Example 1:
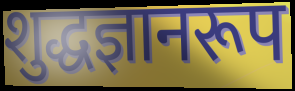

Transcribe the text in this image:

शुद्धज्ञानरूप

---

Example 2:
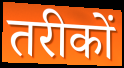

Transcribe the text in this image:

तरीकों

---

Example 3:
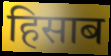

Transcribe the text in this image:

हिसाब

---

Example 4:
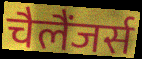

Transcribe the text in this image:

चैलैंजर्स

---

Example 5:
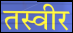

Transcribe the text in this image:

तस्वीर